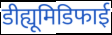
डीह्यूमिडिफाई